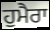
ਹੁਮੈਰਾ